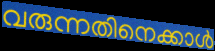
വരുന്നതിനെക്കാൾ